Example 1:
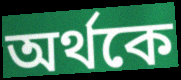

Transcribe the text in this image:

অৰ্থকে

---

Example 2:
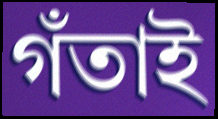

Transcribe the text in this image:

গঁতাই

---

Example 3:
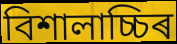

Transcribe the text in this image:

বিশালাচ্চিৰ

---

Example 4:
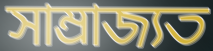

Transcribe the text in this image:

সাম্ৰাজ্যত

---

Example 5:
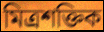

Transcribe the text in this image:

মিত্ৰশক্তিক